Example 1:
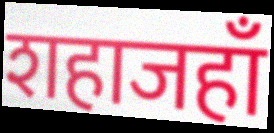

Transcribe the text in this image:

शहाजहाँ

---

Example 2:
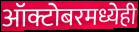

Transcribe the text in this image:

ऑक्टोबरमध्येही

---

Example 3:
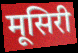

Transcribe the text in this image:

मूसिरी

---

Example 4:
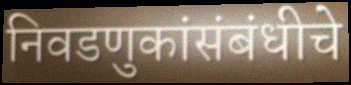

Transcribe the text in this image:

निवडणुकांसंबंधीचे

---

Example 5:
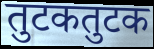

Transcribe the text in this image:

तुटकतुटक